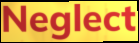
Neglect